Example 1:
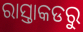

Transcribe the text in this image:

ରାସ୍ତାକଡରୁ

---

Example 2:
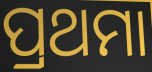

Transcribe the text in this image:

ପ୍ରଥମା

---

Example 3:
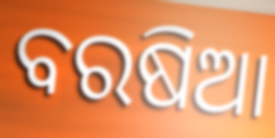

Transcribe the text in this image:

ବରଷିଆ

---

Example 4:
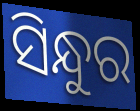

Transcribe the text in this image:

ସିନ୍ଧୁର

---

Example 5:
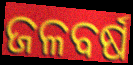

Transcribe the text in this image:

ଜଳବର୍ଷ